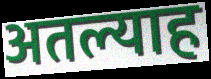
अतल्याह